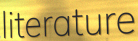
literature